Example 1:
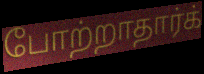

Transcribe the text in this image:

போற்றாதார்க்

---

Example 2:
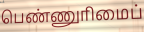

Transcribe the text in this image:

பெண்ணுரிமைப்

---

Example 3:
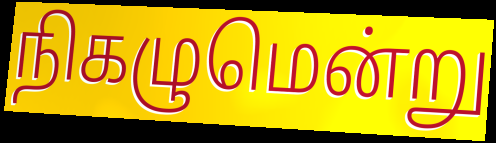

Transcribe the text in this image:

நிகழுமென்று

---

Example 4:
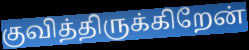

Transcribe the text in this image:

குவித்திருக்கிறேன்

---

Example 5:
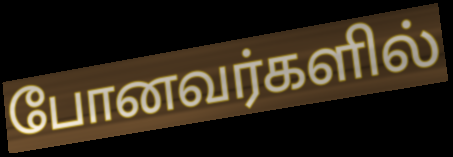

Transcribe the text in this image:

போனவர்களில்